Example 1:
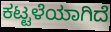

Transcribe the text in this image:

ಕಟ್ಟಳೆಯಾಗಿದೆ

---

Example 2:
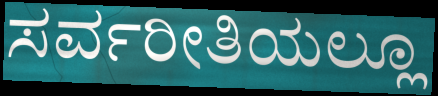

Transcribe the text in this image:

ಸರ್ವರೀತಿಯಲ್ಲೂ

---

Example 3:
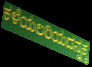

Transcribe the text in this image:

ಕಳೆಯಲರಿಯದನ್ನಕ್ಕ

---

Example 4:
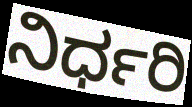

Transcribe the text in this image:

ನಿರ್ಧರಿ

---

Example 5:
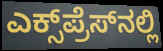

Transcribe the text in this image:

ಎಕ್ಸ್‌ಪ್ರೆಸ್‌ನಲ್ಲಿ